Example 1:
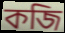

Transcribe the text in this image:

কজি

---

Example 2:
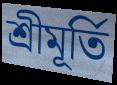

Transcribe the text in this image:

শ্রীমূর্তি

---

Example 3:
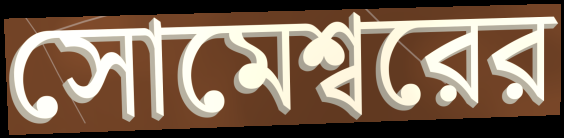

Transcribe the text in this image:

সোমেশ্বরের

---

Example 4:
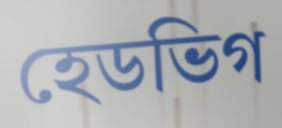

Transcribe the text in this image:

হেডভিগ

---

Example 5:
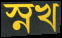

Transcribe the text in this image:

স্নখ